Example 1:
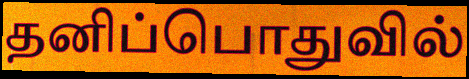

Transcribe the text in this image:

தனிப்பொதுவில்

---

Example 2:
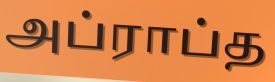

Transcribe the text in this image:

அப்ராப்த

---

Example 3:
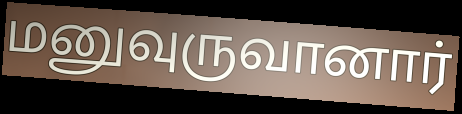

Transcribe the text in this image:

மனுவுருவானார்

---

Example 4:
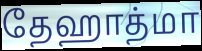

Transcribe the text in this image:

தேஹாத்மா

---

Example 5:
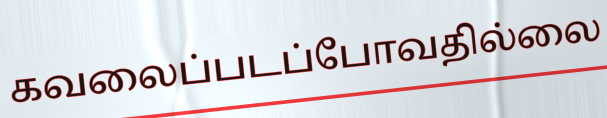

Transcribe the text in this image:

கவலைப்படப்போவதில்லை